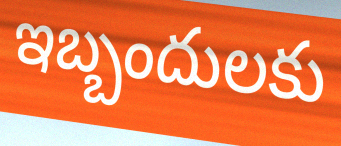
ఇబ్బందులకు